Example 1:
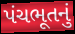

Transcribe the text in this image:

પંચભૂતનું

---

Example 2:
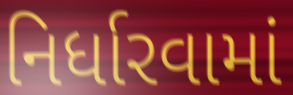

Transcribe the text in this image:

નિર્ધારવામાં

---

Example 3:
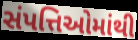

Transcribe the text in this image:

સંપત્તિઓમાંથી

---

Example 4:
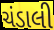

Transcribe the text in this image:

ચંડાલી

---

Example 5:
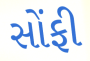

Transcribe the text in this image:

સોંફી